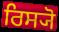
ਰਿਸ੍ਯੋ